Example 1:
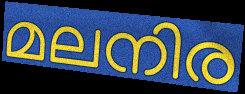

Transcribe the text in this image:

മലനിര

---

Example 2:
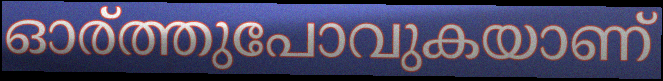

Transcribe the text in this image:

ഓര്ത്തുപോവുകയാണ്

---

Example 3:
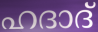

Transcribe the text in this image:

ഹദാദ്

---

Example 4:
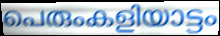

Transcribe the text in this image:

പെരുംകളിയാട്ടം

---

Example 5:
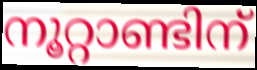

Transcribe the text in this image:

നൂറ്റാണ്ടിന്